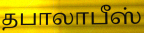
தபாலாபீஸ்